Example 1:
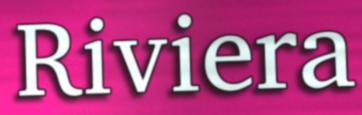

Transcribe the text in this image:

Riviera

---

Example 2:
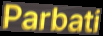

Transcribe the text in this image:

Parbati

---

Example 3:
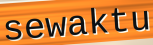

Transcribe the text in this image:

sewaktu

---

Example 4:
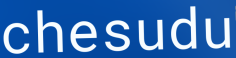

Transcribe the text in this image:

chesudu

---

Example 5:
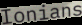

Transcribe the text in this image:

Ionians